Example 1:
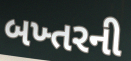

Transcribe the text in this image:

બખ્તરની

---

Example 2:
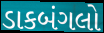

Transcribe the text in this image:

ડાકબંગલો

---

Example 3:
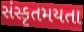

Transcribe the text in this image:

સંસ્કૃતમયતા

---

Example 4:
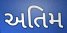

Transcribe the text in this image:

અતિમ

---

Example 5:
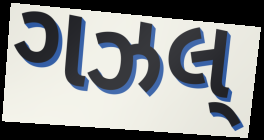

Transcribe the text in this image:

ગઝલ્